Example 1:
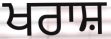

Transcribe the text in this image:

ਖਰਾਸ਼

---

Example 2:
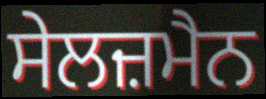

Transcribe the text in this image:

ਸੇਲਜ਼ਮੈਨ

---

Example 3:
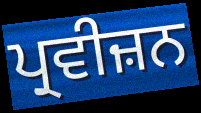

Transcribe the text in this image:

ਪ੍ਰਵੀਜ਼ਨ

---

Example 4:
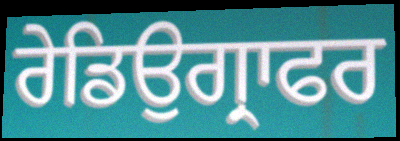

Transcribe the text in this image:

ਰੇਡਿਉਗ੍ਰਾਫਰ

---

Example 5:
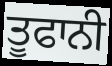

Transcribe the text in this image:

ਤੂਫਾਨੀ